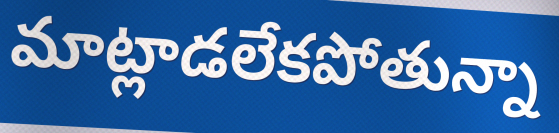
మాట్లాడలేకపోతున్నా